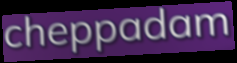
cheppadam